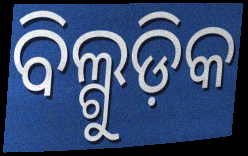
ବିଲ୍ଗୁଡ଼ିକ